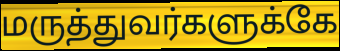
மருத்துவர்களுக்கே